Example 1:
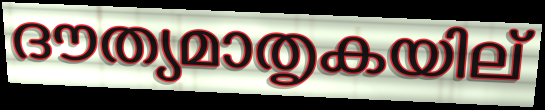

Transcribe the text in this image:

ദൗത്യമാതൃകയില്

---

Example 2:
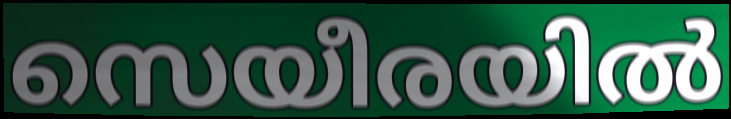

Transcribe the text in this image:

സെയീരയിൽ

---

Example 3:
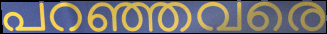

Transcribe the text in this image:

പറഞ്ഞവരെ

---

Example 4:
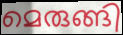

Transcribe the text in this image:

മെരുങ്ങി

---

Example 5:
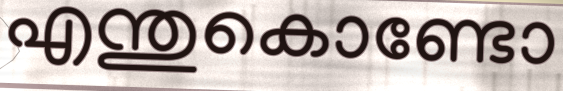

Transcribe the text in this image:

എന്തുകൊണ്ടോ